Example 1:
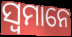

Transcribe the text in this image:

ସ୍ୱମାନେ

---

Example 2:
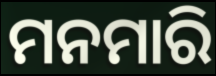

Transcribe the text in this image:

ମନମାରି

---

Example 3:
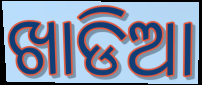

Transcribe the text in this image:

ଖାଡିଆ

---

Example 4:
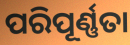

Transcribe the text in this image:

ପରିପୂର୍ଣ୍ଣତା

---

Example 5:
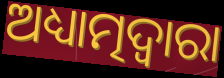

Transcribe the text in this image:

ଅଧ୍ୟାତ୍ମଦ୍ୱାରା